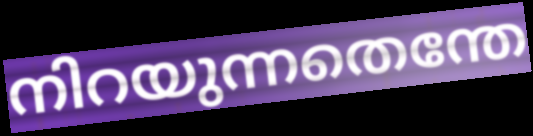
നിറയുന്നതെന്തേ